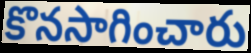
కొనసాగించారు